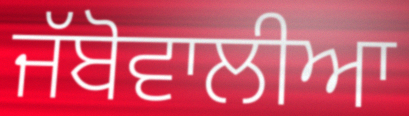
ਜੱਬੋਵਾਲੀਆ